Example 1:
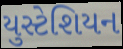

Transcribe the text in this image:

યુસ્ટેશિયન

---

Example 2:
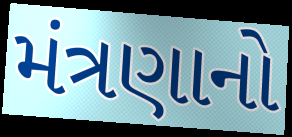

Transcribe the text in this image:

મંત્રણાનો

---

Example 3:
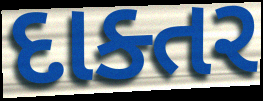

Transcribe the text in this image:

દાક્તર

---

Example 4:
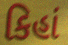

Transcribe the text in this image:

કિહાં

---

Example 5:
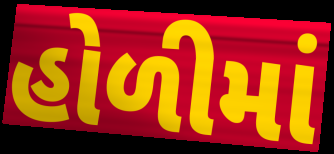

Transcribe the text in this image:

હોળીમાં